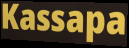
Kassapa